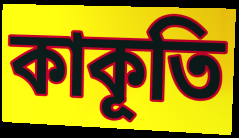
কাকূতি